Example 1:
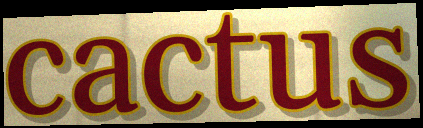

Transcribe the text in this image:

cactus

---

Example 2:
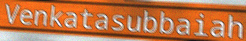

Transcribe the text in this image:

Venkatasubbaiah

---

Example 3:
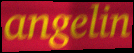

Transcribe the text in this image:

angelin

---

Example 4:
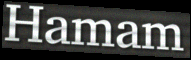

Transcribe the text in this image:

Hamam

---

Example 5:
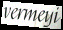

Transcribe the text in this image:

vermeyi